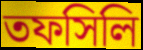
তফসিলি